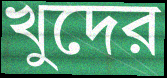
খুদের